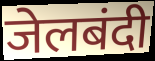
जेलबंदी